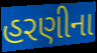
હરણીના